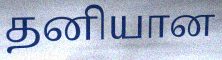
தனியான